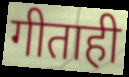
गीताही